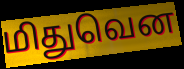
மிதுவென